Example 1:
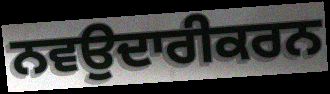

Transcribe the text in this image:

ਨਵਉਦਾਰੀਕਰਨ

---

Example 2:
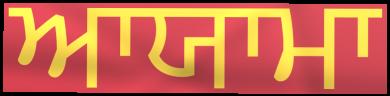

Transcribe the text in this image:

ਆਯਾਮਾ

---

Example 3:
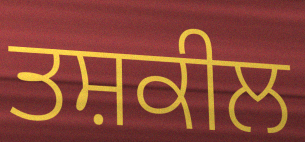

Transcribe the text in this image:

ਤਸ਼ਕੀਲ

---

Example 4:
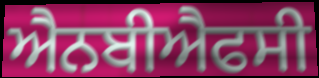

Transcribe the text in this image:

ਐਨਬੀਐਫਸੀ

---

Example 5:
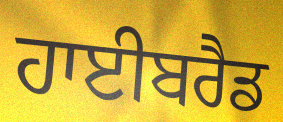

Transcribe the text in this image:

ਹਾਈਬਰੈਡ